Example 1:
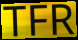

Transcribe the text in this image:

TFR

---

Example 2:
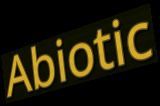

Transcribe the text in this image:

Abiotic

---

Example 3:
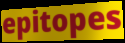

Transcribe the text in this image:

epitopes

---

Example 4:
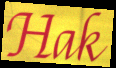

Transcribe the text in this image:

Hak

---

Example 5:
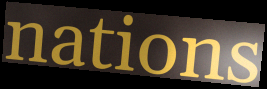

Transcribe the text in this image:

nations